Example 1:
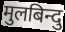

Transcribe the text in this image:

मुलबिन्दु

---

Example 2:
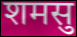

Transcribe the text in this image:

शमसु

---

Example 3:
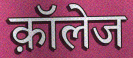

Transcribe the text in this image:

क़ॉलेज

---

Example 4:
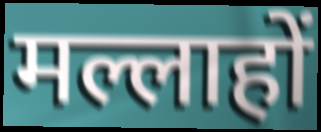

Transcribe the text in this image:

मल्लाहों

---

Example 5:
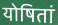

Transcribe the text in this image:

योषितां